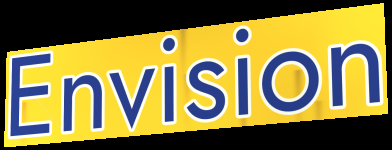
Envision